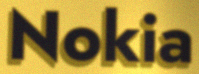
Nokia